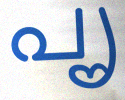
പൄ